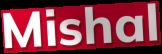
Mishal